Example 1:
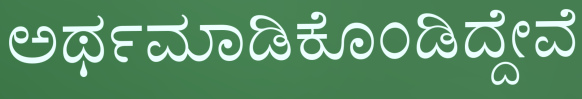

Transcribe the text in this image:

ಅರ್ಥಮಾಡಿಕೊಂಡಿದ್ದೇವೆ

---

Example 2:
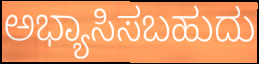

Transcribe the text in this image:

ಅಭ್ಯಾಸಿಸಬಹುದು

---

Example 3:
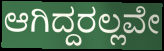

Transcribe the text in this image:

ಆಗಿದ್ದರಲ್ಲವೇ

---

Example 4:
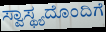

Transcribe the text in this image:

ಸ್ವಾಸ್ಥ್ಯದೊಂದಿಗೆ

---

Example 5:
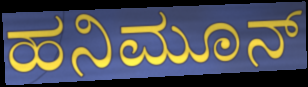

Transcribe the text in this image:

ಹನಿಮೂನ್